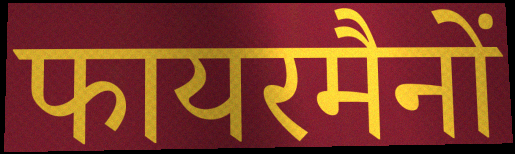
फायरमैनों